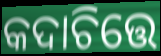
କଦାଚିତ୍ତେ